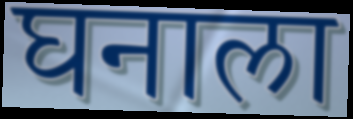
घनाला